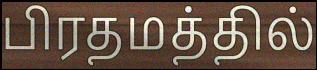
பிரதமத்தில்